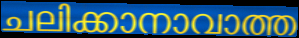
ചലിക്കാനാവാത്ത